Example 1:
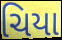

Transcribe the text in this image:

ચિયા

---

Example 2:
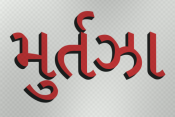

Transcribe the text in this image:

મુર્તઝા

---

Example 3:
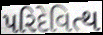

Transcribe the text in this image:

પરિદેવિત્થ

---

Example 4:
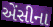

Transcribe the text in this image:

એંસીના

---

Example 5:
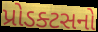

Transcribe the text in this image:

પ્રોડક્ટસનો